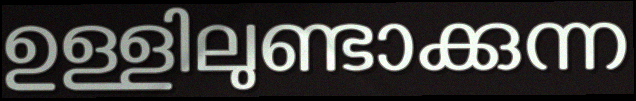
ഉള്ളിലുണ്ടാക്കുന്ന